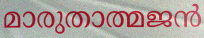
മാരുതാത്മജൻ